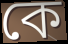
কে